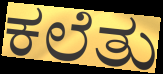
ಕಲೆತು